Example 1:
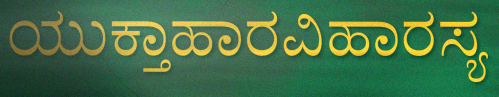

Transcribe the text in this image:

ಯುಕ್ತಾಹಾರವಿಹಾರಸ್ಯ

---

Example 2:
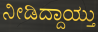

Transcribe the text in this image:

ನೀಡಿದ್ದಾಯ್ತು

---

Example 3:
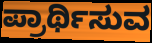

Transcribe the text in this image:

ಪ್ರಾರ್ಥಿಸುವ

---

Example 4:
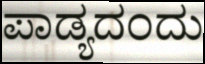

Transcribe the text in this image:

ಪಾಡ್ಯದಂದು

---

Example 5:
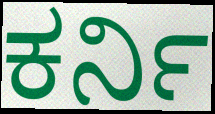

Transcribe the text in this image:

ಕರ್ನಿ